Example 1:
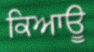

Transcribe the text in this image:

ਕਿਆਊ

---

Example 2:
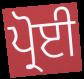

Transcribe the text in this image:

ਪ੍ਰੋਈ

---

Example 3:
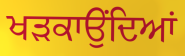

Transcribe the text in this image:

ਖੜਕਾਉਂਦਿਆਂ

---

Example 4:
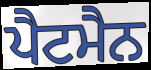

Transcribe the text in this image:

ਪੈਟਮੈਨ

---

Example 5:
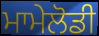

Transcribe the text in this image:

ਮਾਮੇਲੋਡੀ